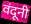
वंदूनी